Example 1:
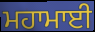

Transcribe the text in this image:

ਮਹਾਮਾਈ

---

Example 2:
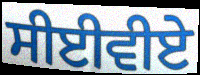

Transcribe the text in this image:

ਸੀਈਵੀਏ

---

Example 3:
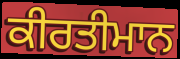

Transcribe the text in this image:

ਕੀਰਤੀਮਾਨ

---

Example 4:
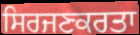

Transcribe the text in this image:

ਸਿਰਜਣਕਰਤਾ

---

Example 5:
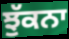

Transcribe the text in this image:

ਝੁੱਕਨਾ